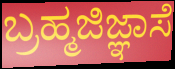
ಬ್ರಹ್ಮಜಿಜ್ಞಾಸೆ